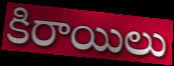
కిరాయిలు